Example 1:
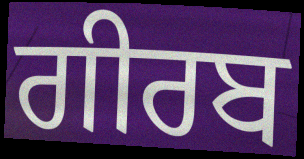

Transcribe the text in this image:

ਗੀਰਬ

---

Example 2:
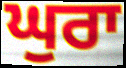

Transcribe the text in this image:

ਘੁਰਾ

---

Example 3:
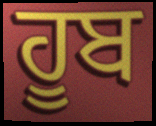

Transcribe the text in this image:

ਹੂਬ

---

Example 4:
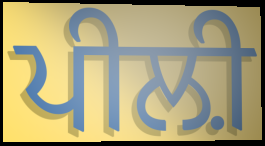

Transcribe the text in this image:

ਪੀਲ਼ੀ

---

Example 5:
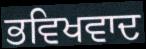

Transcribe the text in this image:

ਭਵਿਖਵਾਦ